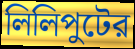
লিলিপুটের